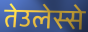
तेउलेस्से